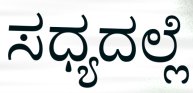
ಸಧ್ಯದಲ್ಲೆ